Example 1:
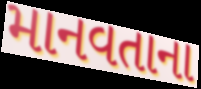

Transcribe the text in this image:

માનવતાના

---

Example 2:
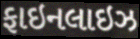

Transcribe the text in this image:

ફાઇનલાઇઝ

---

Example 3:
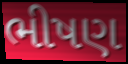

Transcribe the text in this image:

ભીષણ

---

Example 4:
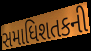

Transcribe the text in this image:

સમાધિશતકની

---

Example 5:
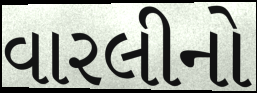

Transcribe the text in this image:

વારલીનો